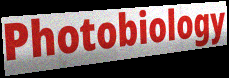
Photobiology